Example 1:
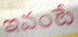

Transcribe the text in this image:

ఇవంటే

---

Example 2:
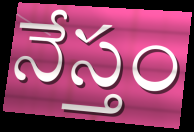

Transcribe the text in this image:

నేస్తం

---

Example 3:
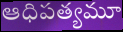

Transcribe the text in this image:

ఆధిపత్యమూ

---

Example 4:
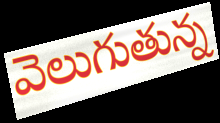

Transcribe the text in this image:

వెలుగుతున్న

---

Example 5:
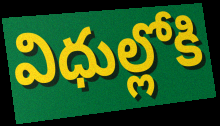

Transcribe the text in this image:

విధుల్లోకి